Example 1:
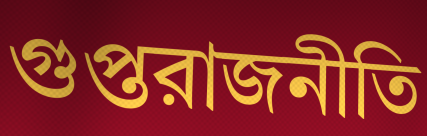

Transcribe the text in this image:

গুপ্তরাজনীতি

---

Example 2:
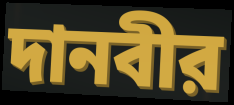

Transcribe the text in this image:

দানবীর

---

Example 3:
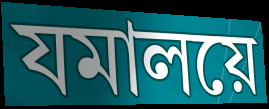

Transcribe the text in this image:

যমালয়ে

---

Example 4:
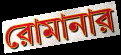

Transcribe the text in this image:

রোমানার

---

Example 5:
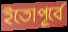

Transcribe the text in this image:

ইতোপূর্বে